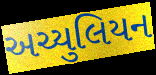
અચ્યુલિયન